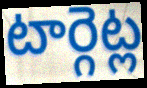
టార్గెట్ల